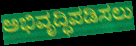
ಅಭಿವೃದ್ಧಿಪಡಿಸಲು